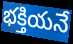
భక్తియనే